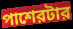
পাশেরটার